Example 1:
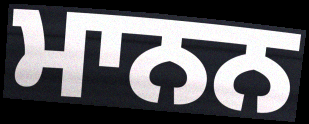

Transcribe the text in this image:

ਮਾਨਨ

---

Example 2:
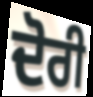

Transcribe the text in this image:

ਦੋਰੀ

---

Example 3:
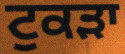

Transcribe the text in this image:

ਟੁਕਡ਼ਾ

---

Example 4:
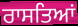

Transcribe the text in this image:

ਰਾਸਤਿਆਂ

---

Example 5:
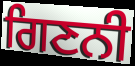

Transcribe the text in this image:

ਗਿਣਨੀ